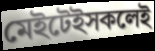
মেইটেইসকলেই